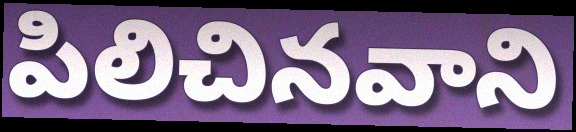
పిలిచినవాని